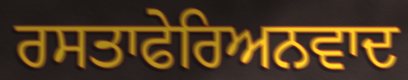
ਰਸਤਾਫੇਰਿਅਨਵਾਦ